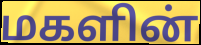
மகளின்